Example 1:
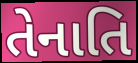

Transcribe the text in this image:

તેનાતિ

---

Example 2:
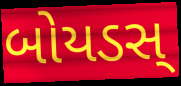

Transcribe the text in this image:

બોયડસ્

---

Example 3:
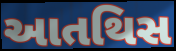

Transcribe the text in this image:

આતથિસ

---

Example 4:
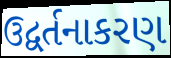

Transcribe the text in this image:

ઉદ્વર્તનાકરણ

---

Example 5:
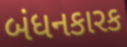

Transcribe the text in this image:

બંધનકારક